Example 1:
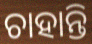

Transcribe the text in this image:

ଚାହାନ୍ତି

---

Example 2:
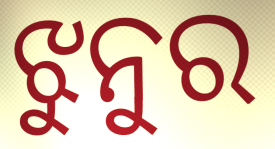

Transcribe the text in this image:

ଝୁନୁର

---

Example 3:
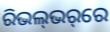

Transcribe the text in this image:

ରିଭଲ୍‌ଭର୍‌ରେ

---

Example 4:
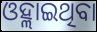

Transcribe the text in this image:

ଓହ୍ଲାଇଥିବା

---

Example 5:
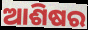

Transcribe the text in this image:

ଆଶିଷର